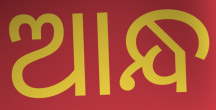
ଆନ୍ଧ